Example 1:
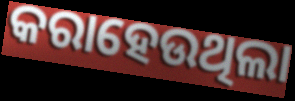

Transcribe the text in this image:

କରାହେଉଥିଲା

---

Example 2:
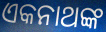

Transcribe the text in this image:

ଏକନାଥଙ୍କ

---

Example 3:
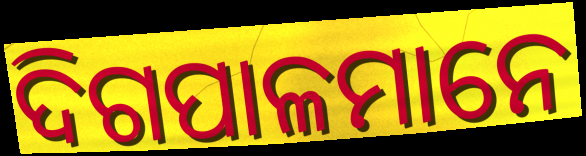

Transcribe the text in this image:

ଦିଗପାଳମାନେ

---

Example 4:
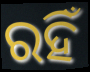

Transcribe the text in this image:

ରହିଁ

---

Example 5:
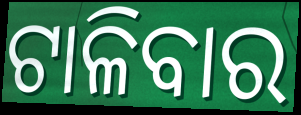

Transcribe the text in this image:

ଟାଳିବାର